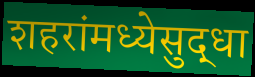
शहरांमध्येसुद्धा